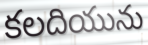
కలదియును